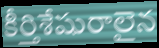
కీర్తిశేషురాలైన